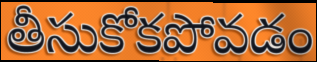
తీసుకోకపోవడం